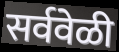
सर्ववेळी